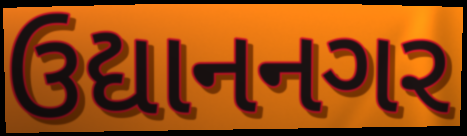
ઉદ્યાનનગર